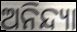
ଅନିନ୍ଦ୍ୟା